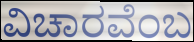
ವಿಚಾರವೆಂಬ